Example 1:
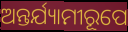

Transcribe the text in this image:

ଅନ୍ତର୍ଯ୍ୟାମୀରୂପେ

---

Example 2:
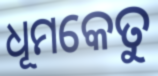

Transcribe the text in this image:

ଧୂମକେତୁ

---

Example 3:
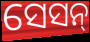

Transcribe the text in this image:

ସେସନ୍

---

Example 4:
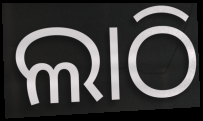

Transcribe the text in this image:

ଲାଠି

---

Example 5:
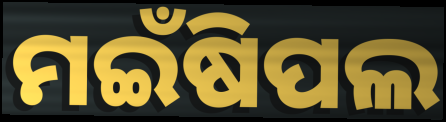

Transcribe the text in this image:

ମଇଁଷିପଲ